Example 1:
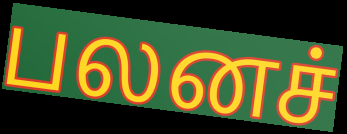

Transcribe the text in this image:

பலனச்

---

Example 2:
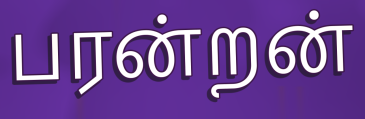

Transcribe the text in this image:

பரன்றன்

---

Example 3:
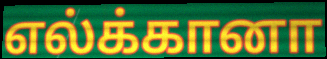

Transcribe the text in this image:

எல்க்கானா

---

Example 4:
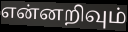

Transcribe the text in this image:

என்னறிவும்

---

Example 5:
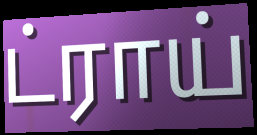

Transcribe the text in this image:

ட்ராய்